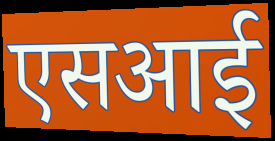
एसआई